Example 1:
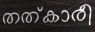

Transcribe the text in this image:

തത്കാരീ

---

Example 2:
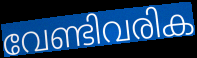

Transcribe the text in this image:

വേണ്ടിവരിക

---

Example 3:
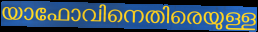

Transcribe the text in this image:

യാഫോവിനെതിരെയുള്ള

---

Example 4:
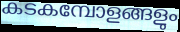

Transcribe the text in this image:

കടകമ്പോളങ്ങളും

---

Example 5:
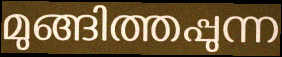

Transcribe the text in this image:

മുങ്ങിത്തപ്പുന്ന